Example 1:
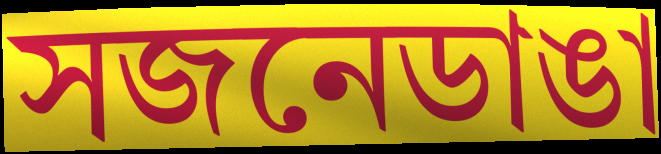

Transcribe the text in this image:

সজনেডাঙা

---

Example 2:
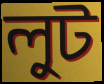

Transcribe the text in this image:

লুট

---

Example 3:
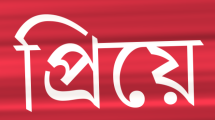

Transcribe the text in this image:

প্রিয়ে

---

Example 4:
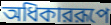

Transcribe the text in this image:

অধিকাররূপে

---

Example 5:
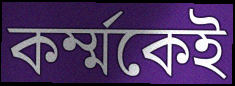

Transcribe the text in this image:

কর্ম্মকেই